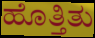
ಹೊತ್ತಿತು